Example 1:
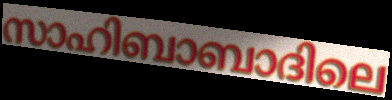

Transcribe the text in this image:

സാഹിബാബാദിലെ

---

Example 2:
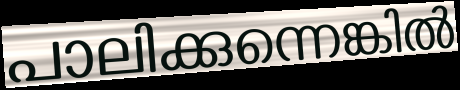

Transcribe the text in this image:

പാലിക്കുന്നെങ്കിൽ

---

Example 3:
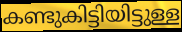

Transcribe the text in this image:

കണ്ടുകിട്ടിയിട്ടുള്ള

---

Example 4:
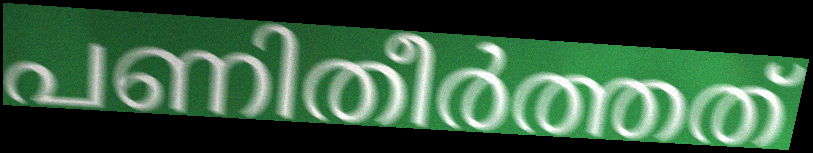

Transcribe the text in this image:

പണിതീർത്തത്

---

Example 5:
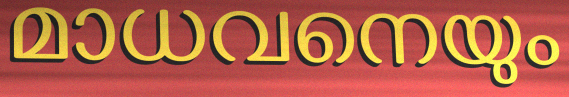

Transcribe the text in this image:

മാധവനെയും